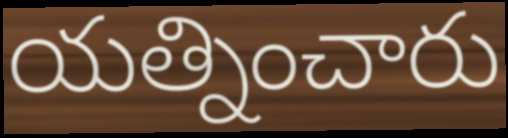
యత్నించారు